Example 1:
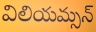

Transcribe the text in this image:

విలియమ్సన్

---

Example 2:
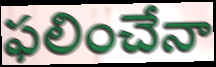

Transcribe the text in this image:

ఫలించేనా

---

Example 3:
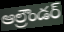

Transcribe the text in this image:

ఆల్రౌండర్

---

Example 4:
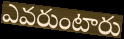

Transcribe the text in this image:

ఎవరుంటారు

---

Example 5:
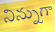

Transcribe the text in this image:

నిన్నుగా